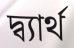
দ্ব্যার্থ